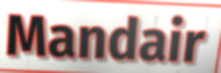
Mandair